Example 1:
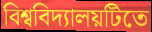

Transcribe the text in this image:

বিশ্ববিদ্যালয়টিতে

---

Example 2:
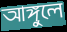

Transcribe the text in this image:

আঙ্গুলে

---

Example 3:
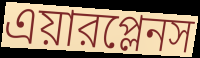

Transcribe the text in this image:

এয়ারপ্লেনস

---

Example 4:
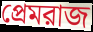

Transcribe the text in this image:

প্রেমরাজ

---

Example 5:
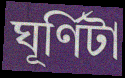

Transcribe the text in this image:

ঘূর্ণিটা